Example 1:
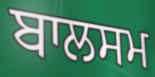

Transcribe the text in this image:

ਬਾਲਸਮ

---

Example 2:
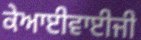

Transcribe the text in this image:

ਕੇਆਈਵਾਈਜੀ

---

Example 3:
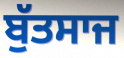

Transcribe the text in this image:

ਬੁੱਤਸਾਜ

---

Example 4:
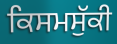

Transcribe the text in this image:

ਕਿਸਮਸੁੱਕੀ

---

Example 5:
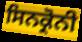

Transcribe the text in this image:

ਸਿਨਕ੍ਰੋਨੀ